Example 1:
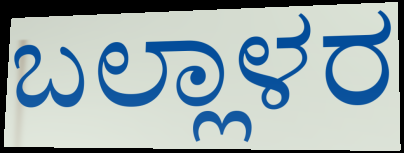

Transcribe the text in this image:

ಬಲ್ಲಾಳರ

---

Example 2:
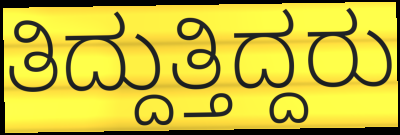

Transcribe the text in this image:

ತಿದ್ದುತ್ತಿದ್ದರು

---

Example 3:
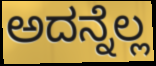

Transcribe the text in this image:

ಅದನ್ನೆಲ್ಲ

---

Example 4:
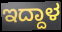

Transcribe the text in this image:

ಇದ್ದಾಳ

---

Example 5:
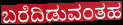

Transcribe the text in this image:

ಬರೆದಿಡುವಂತಹ